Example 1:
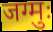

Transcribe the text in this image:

जग्मुः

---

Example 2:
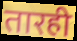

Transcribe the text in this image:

तारही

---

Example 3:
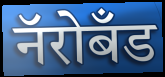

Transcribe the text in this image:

नॅरोबँड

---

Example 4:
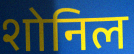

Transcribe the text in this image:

शोनिल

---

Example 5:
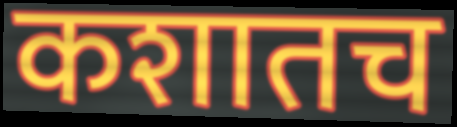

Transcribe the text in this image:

कशातच